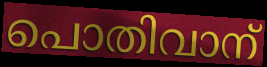
പൊതിവാന്